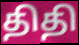
திதி